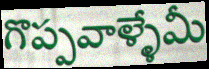
గొప్పవాళ్ళేమీ